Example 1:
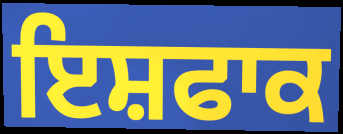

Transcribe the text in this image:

ਇਸ਼ਫਾਕ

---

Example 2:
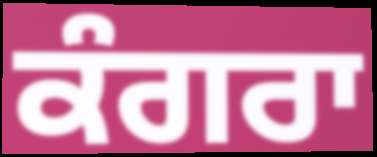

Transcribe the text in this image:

ਕੰਗਰਾ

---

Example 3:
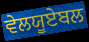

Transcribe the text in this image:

ਵੇਲਯੂਏਬਲ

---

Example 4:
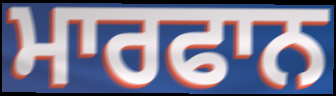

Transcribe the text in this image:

ਮਾਰਫਾਨ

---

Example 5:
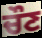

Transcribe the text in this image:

ਚੌਣ